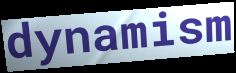
dynamism